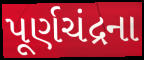
પૂર્ણચંદ્રના